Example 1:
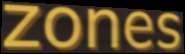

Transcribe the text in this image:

zones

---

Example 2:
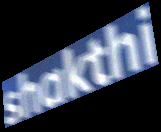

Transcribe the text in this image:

shakthi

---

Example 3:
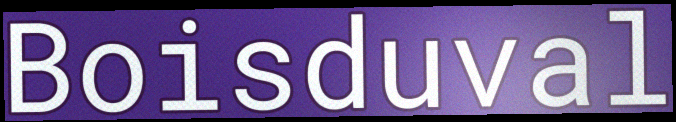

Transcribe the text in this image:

Boisduval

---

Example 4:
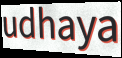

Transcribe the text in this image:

udhaya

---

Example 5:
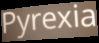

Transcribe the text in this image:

Pyrexia